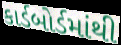
કાર્ડબોર્ડમાંથી